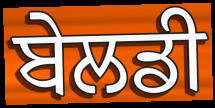
ਬੇਲਡੀ